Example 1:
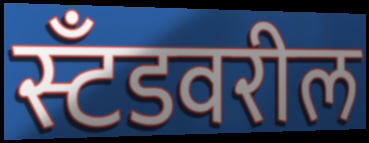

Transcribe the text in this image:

स्टँडवरील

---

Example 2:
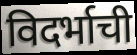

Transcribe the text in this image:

विदर्भाची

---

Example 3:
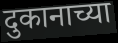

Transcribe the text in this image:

दुकानाच्या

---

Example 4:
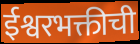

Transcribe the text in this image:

ईश्वरभक्तीची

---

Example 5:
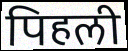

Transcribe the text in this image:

पिहली